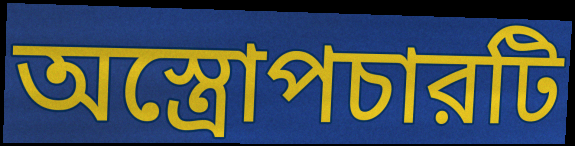
অস্ত্রোপচারটি